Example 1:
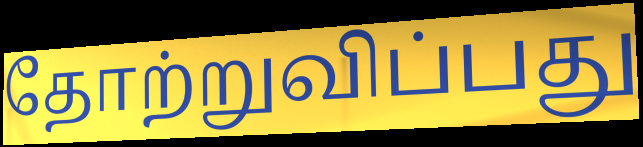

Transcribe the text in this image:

தோற்றுவிப்பது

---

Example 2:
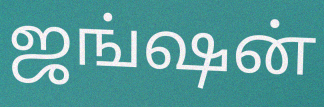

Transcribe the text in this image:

ஜங்ஷன்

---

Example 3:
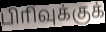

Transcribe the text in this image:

பிரிவுக்குக்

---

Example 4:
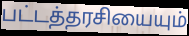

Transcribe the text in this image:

பட்டத்தரசியையும்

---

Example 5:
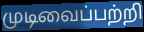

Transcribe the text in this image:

முடிவைப்பற்றி